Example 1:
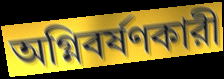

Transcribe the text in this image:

অগ্নিবর্ষণকারী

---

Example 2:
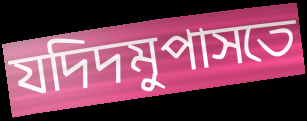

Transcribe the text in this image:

যদিদমুপাসতে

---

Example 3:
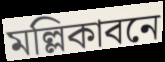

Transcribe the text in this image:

মল্লিকাবনে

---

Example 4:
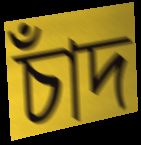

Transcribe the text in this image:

চাঁদ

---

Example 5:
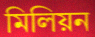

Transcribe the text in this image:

মিলিয়ন